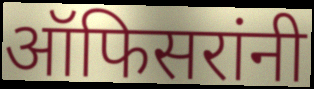
ऑफिसरांनी